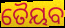
ତୈୟବ